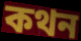
কথন